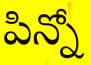
పిన్నో